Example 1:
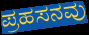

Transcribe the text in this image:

ಪ್ರಹಸನವು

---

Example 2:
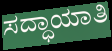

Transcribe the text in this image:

ಸದ್ಧಾಯಾತಿ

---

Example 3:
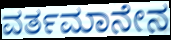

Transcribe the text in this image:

ವರ್ತಮಾನೇನ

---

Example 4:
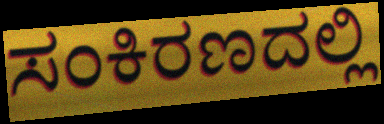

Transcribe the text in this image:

ಸಂಕಿರಣದಲ್ಲಿ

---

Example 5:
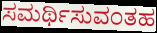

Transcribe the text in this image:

ಸಮರ್ಥಿಸುವಂತಹ